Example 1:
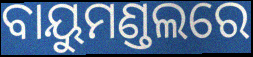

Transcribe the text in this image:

ବାୟୁମଣ୍ଡଲରେ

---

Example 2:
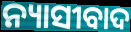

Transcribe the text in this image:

ନ୍ୟାସୀବାଦ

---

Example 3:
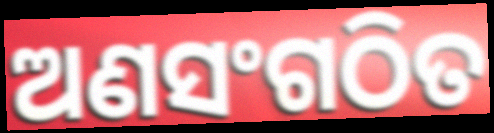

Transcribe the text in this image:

ଅଣସଂଗଠିତ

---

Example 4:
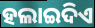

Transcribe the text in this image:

ହଲାଇଦିଏ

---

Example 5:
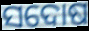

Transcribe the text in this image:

ସଦୋଷ